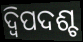
ଦ୍ବିପଦଶ୍ଚ